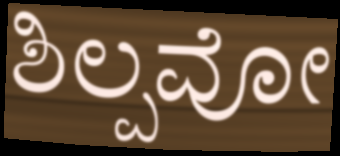
ಶಿಲ್ಪವೋ